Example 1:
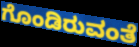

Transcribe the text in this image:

ಗೊಂಡಿರುವಂತೆ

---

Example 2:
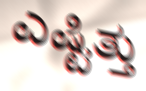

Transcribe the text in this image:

ಎಷ್ಟಿತ್ತು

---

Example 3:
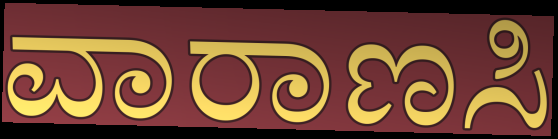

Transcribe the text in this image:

ವಾರಾಣಸಿ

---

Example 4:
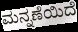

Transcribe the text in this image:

ಮನ್ನಣೆಯಿದೆ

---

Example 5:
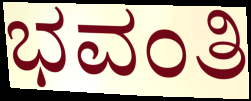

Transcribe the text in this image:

ಭವಂತಿ